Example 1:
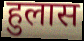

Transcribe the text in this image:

हुलास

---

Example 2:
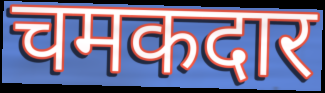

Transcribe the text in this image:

चमकदार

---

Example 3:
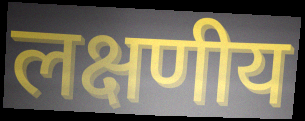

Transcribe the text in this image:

लक्षणीय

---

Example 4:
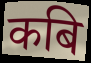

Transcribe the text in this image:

कबि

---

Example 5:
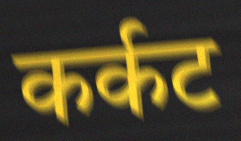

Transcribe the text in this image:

कर्कट